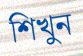
শিখুন